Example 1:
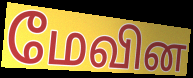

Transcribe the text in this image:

மேவின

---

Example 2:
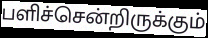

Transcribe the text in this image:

பளிச்சென்றிருக்கும்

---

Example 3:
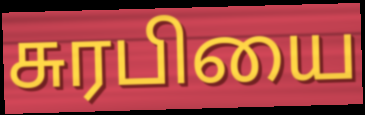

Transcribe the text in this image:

சுரபியை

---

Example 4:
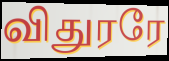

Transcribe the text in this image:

விதுரரே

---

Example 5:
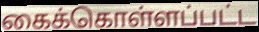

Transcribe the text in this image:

கைக்கொள்ளப்பட்ட